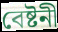
বেষ্টনী